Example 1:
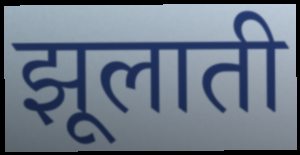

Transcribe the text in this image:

झूलाती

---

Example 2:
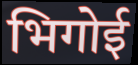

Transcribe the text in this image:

भिगोई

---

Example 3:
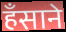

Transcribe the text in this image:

हँसाने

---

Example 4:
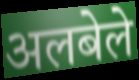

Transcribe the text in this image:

अलबेले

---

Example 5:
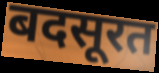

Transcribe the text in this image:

बदसूरत